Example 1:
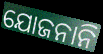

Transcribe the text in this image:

ଯୋଜନାନି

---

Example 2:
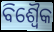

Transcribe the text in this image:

ବିଶ୍ୱୈକ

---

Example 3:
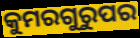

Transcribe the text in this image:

କୁମରଗୁରୁପର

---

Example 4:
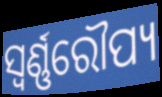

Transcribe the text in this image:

ସ୍ୱର୍ଣ୍ଣରୌପ୍ୟ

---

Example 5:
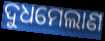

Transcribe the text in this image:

ଦୁଧମେଲାଣ